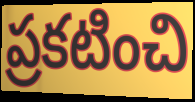
ప్రకటించి